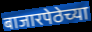
बाजारपेठेच्या